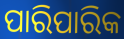
ପାରିପାରିକ